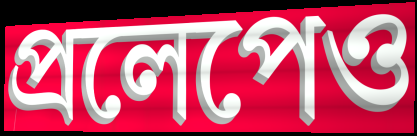
প্রলেপেও